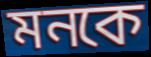
মনকে